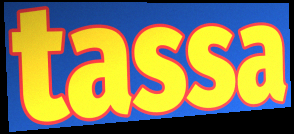
tassa